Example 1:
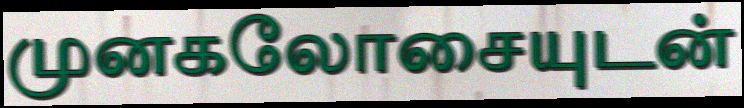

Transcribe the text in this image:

முனகலோசையுடன்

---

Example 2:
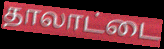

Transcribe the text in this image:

தாலாட்டை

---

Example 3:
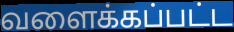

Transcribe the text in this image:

வளைக்கப்பட்ட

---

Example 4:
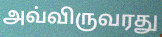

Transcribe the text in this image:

அவ்விருவரது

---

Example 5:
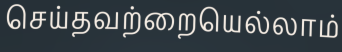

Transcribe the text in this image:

செய்தவற்றையெல்லாம்